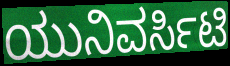
ಯುನಿವರ್ಸಿಟಿ